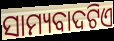
ସାମ୍ୟବାଦଟିଏ